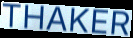
THAKER